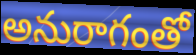
అనురాగంతో